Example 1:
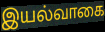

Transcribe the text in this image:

இயல்வாகை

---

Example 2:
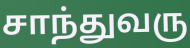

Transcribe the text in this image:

சாந்துவரு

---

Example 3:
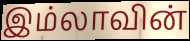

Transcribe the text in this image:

இம்லாவின்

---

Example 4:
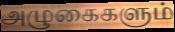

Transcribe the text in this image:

அழுகைகளும்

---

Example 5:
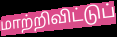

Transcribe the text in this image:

மாற்றிவிட்டுப்